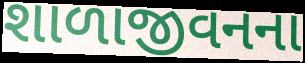
શાળાજીવનના